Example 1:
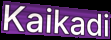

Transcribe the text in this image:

Kaikadi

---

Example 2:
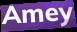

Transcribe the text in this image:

Amey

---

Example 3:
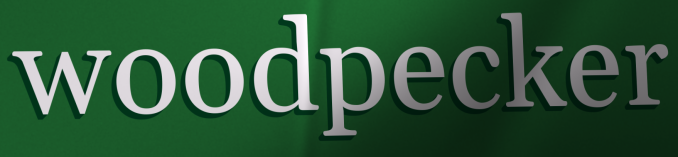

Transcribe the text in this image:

woodpecker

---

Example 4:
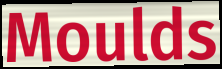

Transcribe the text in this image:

Moulds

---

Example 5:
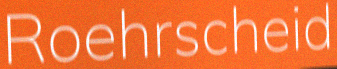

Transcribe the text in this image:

Roehrscheid